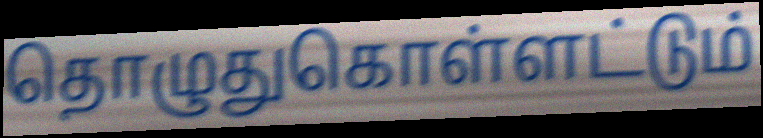
தொழுதுகொள்ளட்டும்